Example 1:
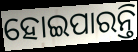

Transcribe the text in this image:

ହୋଇପାରନ୍ତି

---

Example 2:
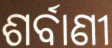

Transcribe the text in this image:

ଶର୍ବାଣୀ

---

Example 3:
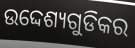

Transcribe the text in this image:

ଉଦ୍ଦେଶ୍ୟଗୁଡିକର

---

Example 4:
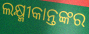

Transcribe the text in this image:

ଲକ୍ଷ୍ମୀକାନ୍ତଙ୍କର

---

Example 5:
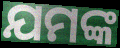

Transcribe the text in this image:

ଯମଙ୍କ